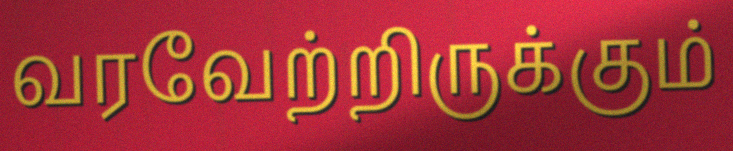
வரவேற்றிருக்கும்